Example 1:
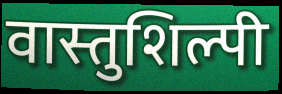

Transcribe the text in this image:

वास्तुशिल्पी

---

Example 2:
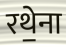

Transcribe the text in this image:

रथे॒ना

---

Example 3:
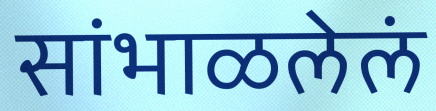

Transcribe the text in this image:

सांभाळलेलं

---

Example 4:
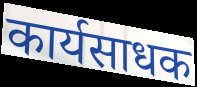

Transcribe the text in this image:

कार्यसाधक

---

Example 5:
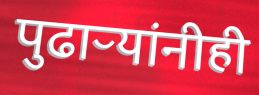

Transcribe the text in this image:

पुढाऱ्यांनीही